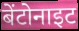
बेंटोनाइट